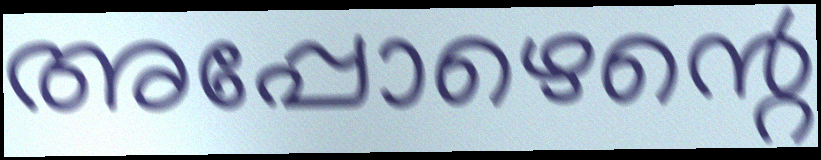
അപ്പോഴെന്റെ